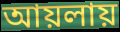
আয়লায়